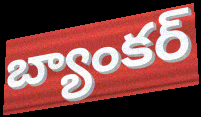
బ్యాంకర్